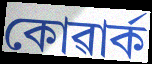
কোৱাৰ্ক